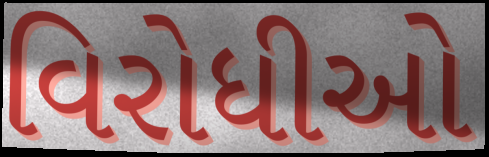
વિરોધીઓ